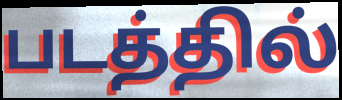
படத்தில்